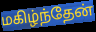
மகிழ்ந்தேன்